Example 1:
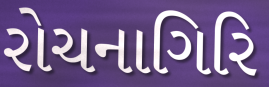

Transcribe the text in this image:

રોચનાગિરિ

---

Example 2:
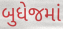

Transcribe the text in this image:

બુધેજમાં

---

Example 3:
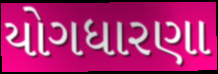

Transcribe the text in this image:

યોગધારણા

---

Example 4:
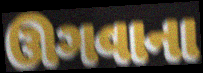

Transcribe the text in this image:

ઊગવાના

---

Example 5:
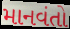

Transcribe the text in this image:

માનવંતો